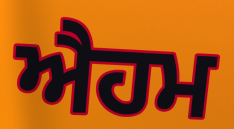
ਐਹਮ